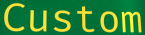
Custom